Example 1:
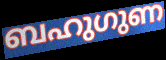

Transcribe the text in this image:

ബഹുഗുണ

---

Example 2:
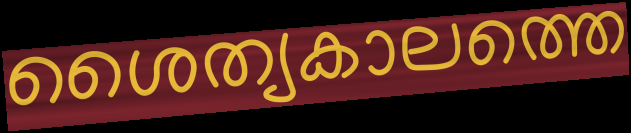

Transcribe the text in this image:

ശൈത്യകാലത്തെ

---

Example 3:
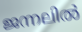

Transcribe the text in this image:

ജന്നലിൽ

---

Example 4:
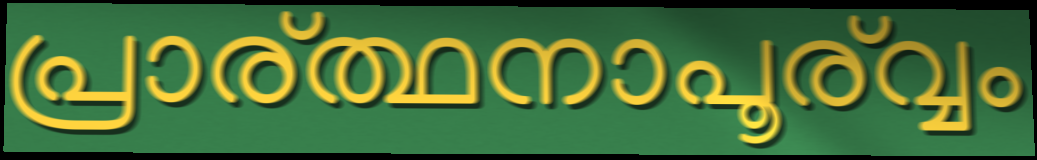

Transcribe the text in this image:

പ്രാര്ത്ഥനാപൂര്വ്വം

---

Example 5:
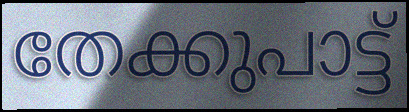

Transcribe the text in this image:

തേക്കുപാട്ട്